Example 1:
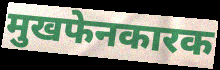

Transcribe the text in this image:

मुखफेनकारक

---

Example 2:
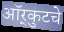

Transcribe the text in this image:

ऑर्कुटचे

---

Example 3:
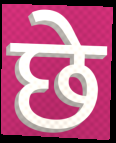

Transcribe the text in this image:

छे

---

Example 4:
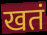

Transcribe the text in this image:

खतं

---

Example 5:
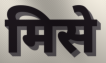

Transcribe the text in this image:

मिसे